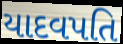
યાદવપતિ